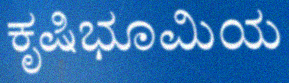
ಕೃಷಿಭೂಮಿಯ